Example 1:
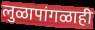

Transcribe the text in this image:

लुळापांगळाही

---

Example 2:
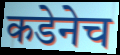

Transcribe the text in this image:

कडेनेच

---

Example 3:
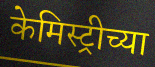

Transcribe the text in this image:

केमिस्ट्रीच्या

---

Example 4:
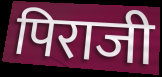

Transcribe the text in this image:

पिराजी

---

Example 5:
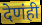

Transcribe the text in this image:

देणंही